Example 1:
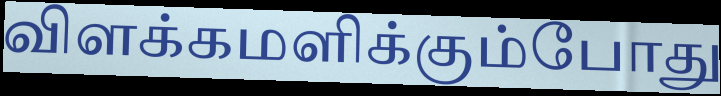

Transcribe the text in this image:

விளக்கமளிக்கும்போது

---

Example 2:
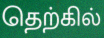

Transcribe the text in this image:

தெற்கில்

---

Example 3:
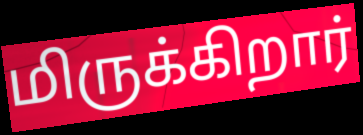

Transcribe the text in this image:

மிருக்கிறார்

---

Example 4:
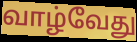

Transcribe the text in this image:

வாழ்வேது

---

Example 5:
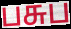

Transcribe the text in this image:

பசுப